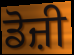
ਡੋਜ਼ੀ